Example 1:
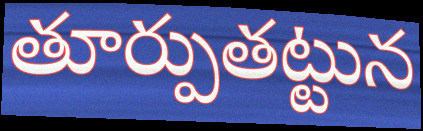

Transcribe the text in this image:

తూర్పుతట్టున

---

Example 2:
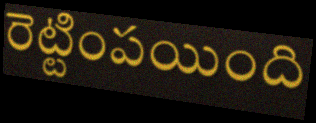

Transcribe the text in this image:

రెట్టింపయింది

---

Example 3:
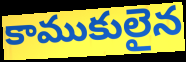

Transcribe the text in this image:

కాముకులైన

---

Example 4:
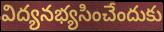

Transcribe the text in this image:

విద్యనభ్యసించేందుకు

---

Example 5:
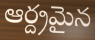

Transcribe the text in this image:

ఆర్ద్రమైన